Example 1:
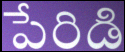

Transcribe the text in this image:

పేరిడి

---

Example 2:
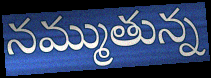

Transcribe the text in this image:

నమ్ముతున్న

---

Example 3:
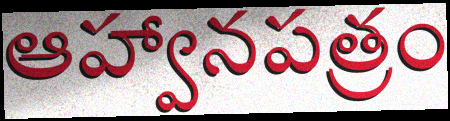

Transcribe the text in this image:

ఆహ్వానపత్రం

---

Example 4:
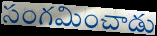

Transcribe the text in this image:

సంగమించాడు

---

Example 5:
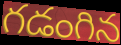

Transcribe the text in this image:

గడంగిన